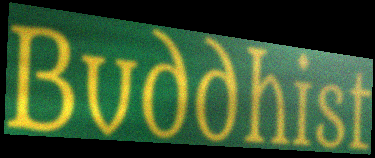
Buddhist